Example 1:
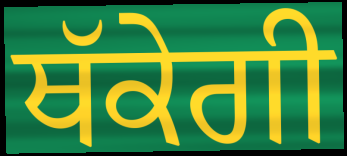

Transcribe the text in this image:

ਥੱਕੇਗੀ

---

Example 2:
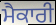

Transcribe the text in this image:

ਮੈਕਾਰੀ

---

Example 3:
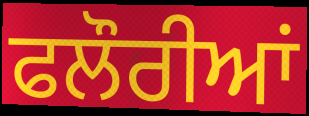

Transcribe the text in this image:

ਫਲੌਰੀਆਂ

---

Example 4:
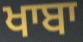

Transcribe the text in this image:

ਖਾਬਾ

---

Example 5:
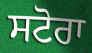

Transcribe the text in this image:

ਸਟੋਰਾ